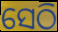
ସେଠି